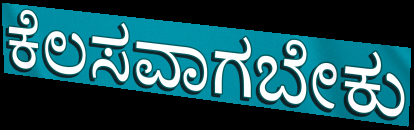
ಕೆಲಸವಾಗಬೇಕು